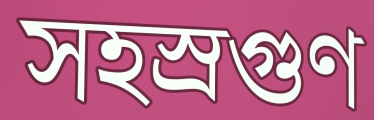
সহস্রগুণ